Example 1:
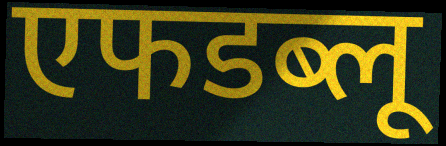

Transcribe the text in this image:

एफडब्लू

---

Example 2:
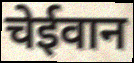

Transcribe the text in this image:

चेईवान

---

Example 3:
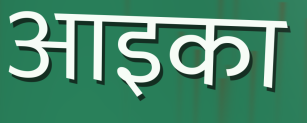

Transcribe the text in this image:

आइका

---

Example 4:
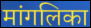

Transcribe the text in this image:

मांगलिका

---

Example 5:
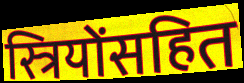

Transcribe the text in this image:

स्त्रियोंसहित